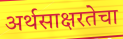
अर्थसाक्षरतेचा